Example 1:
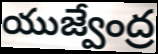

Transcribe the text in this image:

యుజ్వేంద్ర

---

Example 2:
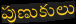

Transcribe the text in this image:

పుణుకులు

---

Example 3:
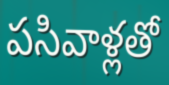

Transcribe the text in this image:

పసివాళ్లతో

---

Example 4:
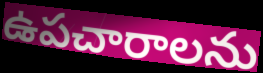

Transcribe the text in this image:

ఉపచారాలను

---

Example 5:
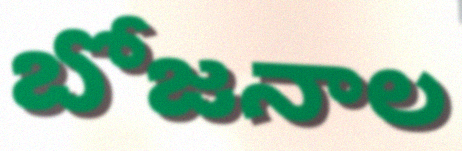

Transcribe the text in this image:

బోజనాల